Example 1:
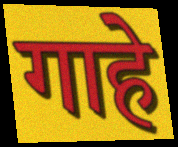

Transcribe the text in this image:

गाहे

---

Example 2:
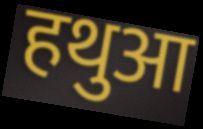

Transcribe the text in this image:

हथुआ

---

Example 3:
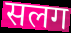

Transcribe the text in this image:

सलग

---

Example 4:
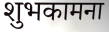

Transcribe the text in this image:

शुभकामना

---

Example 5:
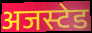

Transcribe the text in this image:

अजस्टेड